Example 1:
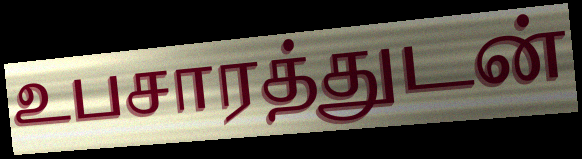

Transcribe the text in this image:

உபசாரத்துடன்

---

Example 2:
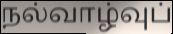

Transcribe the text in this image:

நல்வாழ்வுப்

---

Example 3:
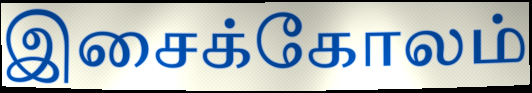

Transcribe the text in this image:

இசைக்கோலம்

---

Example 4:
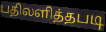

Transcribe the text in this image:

பதிலளித்தபடி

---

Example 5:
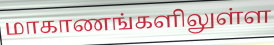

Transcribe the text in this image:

மாகாணங்களிலுள்ள